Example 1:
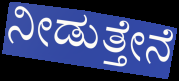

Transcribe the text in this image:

ನೀಡುತ್ತೇನೆ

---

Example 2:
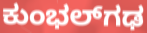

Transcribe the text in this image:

ಕುಂಭಲ್‌ಗಢ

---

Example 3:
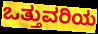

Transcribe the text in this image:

ಒತ್ತುವರಿಯ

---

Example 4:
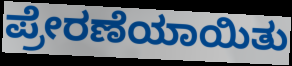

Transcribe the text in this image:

ಪ್ರೇರಣೆಯಾಯಿತು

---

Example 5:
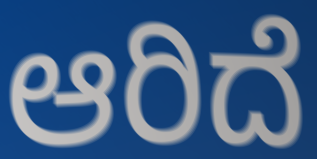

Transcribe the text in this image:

ಆರಿದೆ